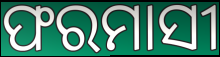
ଫରମାସୀ